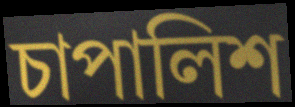
চাপালিশ